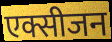
एक्सीजन